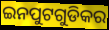
ଇନପୁଟଗୁଡିକର